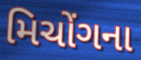
મિચોંગના